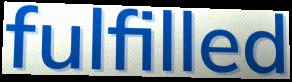
fulfilled